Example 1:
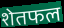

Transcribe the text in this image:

शेतफल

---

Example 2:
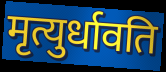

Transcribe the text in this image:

मृत्युर्धावति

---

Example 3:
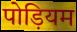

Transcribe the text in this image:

पोड़ियम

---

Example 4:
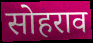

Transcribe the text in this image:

सोहराव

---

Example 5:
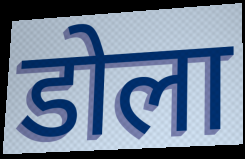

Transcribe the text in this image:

डोला